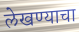
लेखण्याचा